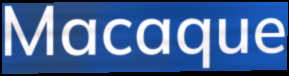
Macaque